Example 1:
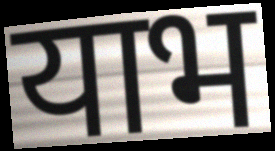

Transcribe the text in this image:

याभ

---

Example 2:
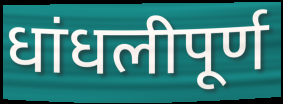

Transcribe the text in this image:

धांधलीपूर्ण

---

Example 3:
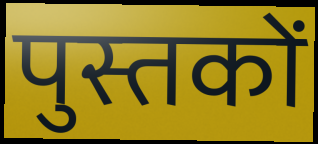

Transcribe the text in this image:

पुस्‍तकों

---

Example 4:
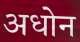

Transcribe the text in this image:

अधोन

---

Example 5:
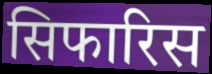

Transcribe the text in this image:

सिफारिस